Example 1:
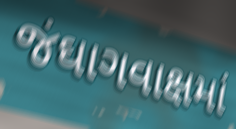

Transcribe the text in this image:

જંઘાગવાક્ષમાં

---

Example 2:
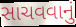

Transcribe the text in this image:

સાચવવાનું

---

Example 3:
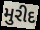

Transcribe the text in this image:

મુરીદ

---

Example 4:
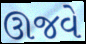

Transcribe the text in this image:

ઊજવે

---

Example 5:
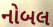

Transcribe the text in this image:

નોબલ